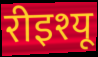
रीइश्यू